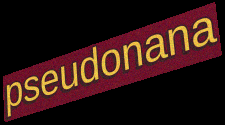
pseudonana